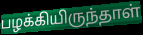
பழக்கியிருந்தாள்